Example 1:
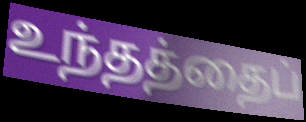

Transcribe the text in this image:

உந்தத்தைப்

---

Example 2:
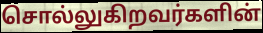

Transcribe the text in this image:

சொல்லுகிறவர்களின்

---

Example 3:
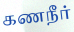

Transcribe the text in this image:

கணநீர்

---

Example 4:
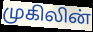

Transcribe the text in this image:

முகிலின்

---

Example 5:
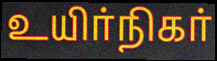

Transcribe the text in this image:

உயிர்நிகர்